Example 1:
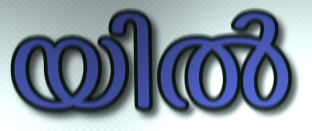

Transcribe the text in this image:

യിൽ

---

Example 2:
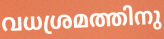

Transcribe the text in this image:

വധശ്രമത്തിനു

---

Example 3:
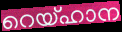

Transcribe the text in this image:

റെയ്ഹാന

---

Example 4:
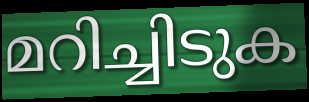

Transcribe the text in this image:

മറിച്ചിടുക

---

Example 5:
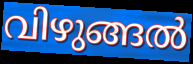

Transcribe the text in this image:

വിഴുങ്ങൽ